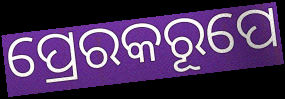
ପ୍ରେରକରୂପେ